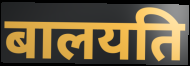
बालयति